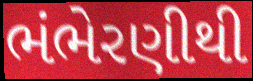
ભંભેરણીથી